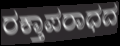
ರಕ್ತಾಪರಾಧದ